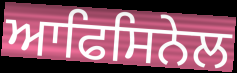
ਆਫਿਸਿਨੇਲ